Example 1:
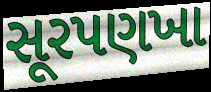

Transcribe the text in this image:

સૂરપણખા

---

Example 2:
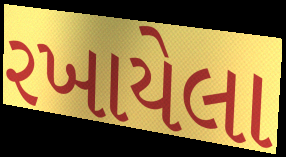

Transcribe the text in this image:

રખાયેલા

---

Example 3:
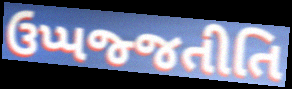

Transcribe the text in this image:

ઉપ્પજ્જતીતિ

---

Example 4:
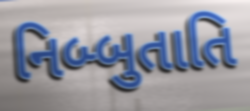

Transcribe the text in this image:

નિબ્બુતાતિ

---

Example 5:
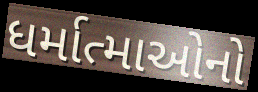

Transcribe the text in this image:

ધર્માત્માઓનો